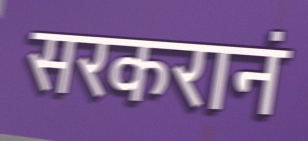
सरकरानं